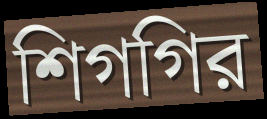
শিগগির